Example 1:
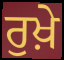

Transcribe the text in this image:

ਰੁਖ਼ੇ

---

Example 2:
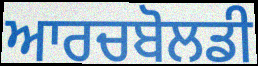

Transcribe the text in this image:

ਆਰਚਬੋਲਡੀ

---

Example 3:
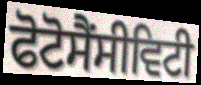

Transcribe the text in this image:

ਫੋਟੋਸੈਂਸੀਵਿਟੀ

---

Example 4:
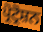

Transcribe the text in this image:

ਪ੍ਰੋਟ੍ਰੋਸ਼ਨ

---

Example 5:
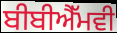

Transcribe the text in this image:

ਬੀਬੀਐੱਮਵੀ